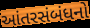
આંતરસંબંધનો